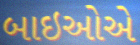
બાઇઓએ